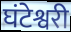
घंटेश्वरी